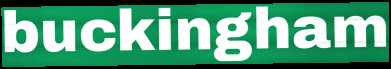
buckingham